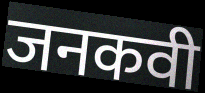
जनकवी